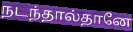
நடந்தால்தானே